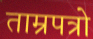
ताम्रपत्रो